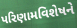
પરિણામવિશેષને